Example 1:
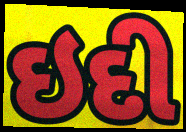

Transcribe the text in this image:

ઇદી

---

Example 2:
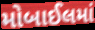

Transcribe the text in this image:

મોબાઈલમાં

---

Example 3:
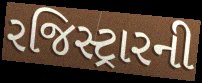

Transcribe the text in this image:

રજિસ્ટ્રારની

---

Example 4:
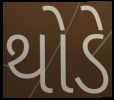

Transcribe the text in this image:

થોડે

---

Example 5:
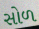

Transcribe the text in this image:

સોળ